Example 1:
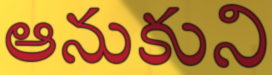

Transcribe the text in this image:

ఆనుకుని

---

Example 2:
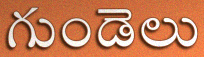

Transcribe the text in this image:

గుండెలు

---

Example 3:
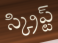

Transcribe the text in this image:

స్క్రిప్ట్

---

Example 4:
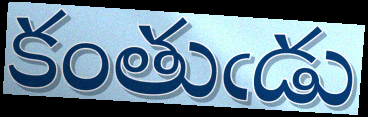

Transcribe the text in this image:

కంతుఁడు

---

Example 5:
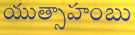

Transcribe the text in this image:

యుత్సాహంబు